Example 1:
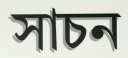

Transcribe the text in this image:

সাচন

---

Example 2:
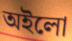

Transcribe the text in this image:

অইলো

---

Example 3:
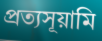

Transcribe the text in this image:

প্রত্যসূয়ামি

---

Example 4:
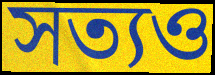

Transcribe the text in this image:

সত্যও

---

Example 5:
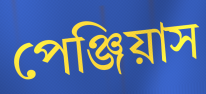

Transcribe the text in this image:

পেঞ্জিয়াস